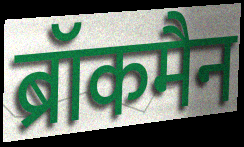
ब्रॉकमैन